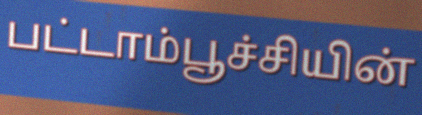
பட்டாம்பூச்சியின்